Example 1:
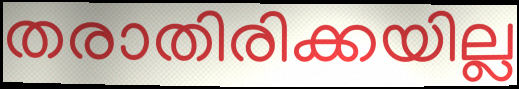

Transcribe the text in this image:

തരാതിരിക്കയില്ല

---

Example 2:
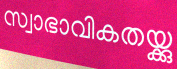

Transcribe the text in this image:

സ്വാഭാവികതയ്ക്കു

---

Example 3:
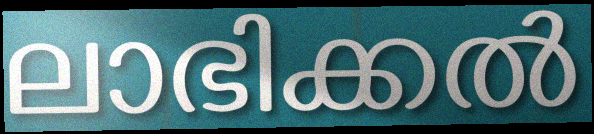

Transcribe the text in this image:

ലാഭിക്കൽ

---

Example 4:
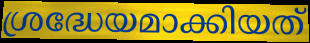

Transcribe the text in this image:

ശ്രദ്ധേയമാക്കിയത്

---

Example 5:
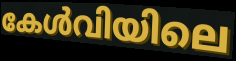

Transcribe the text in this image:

കേൾവിയിലെ